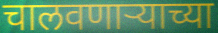
चालवणार्‍याच्या